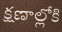
క్షణాల్లోకి